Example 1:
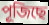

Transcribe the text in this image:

পূজিছে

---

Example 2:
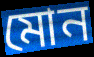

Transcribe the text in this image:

মোন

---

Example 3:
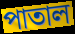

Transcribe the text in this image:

পাতাল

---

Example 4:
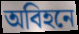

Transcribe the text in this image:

অবিহনে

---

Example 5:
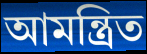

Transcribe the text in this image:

আমন্ত্ৰিত